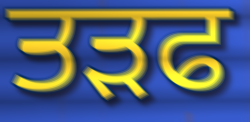
ਤੜਫ